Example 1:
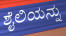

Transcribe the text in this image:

ಶೈಲಿಯನ್ನು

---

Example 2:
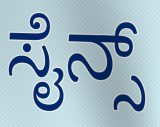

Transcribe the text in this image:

ಸೈನ್ಸ್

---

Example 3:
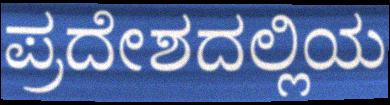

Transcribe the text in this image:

ಪ್ರದೇಶದಲ್ಲಿಯ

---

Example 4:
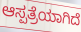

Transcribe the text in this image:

ಆಸ್ಪತ್ರೆಯಾಗಿದೆ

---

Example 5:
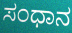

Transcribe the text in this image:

ಸಂಧಾನ